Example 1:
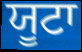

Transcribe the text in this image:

ਯੂਟਾ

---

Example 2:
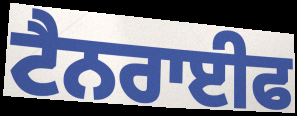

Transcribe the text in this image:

ਟੈਨਰਾਈਫ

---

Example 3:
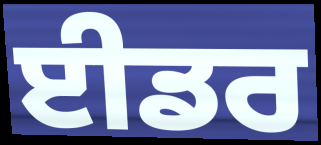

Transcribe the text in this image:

ਈਡਰ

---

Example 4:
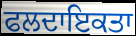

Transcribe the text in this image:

ਫਲਦਾਇਕਤਾ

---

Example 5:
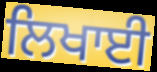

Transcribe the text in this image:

ਲਿਖਾਈ